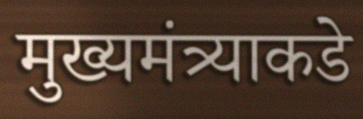
मुख्यमंत्र्याकडे